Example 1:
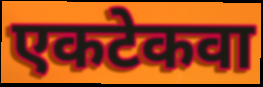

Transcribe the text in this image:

एकटेकवा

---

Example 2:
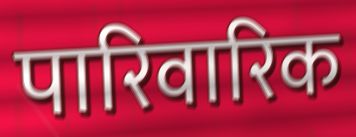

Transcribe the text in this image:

पारिवारिक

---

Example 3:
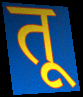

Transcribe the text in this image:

तू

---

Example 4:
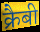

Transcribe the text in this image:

क्रैबी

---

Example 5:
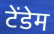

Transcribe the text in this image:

टेंडेम